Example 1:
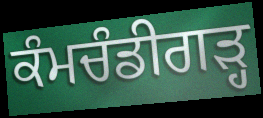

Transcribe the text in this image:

ਕੰਮਚੰਡੀਗੜ੍ਹ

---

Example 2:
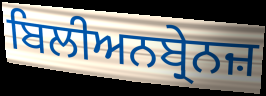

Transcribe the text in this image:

ਬਿਲੀਅਨਬ੍ਰੇਨਜ਼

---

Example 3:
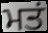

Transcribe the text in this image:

ਮਤਂ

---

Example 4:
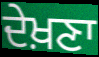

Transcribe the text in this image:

ਦੇਖ਼ਣਾ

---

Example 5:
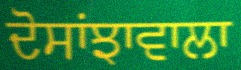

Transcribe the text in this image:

ਦੋਸਾਂਝਾਵਾਲਾ